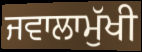
ਜਵਾਲਾਮੁੱਖੀ